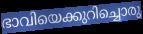
ഭാവിയെക്കുറിച്ചൊരു